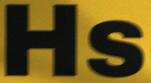
Hs